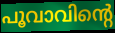
പൂവാവിന്റെ